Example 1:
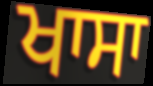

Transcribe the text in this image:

ਖਾਸਾ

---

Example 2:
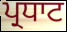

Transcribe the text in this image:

ਪ੍ਰਧਾਟ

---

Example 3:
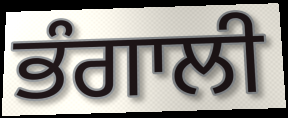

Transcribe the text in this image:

ਭੰਗਾਲੀ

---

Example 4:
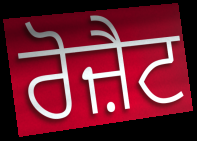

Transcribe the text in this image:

ਰੋਜ਼ੈਟ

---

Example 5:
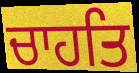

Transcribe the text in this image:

ਚਾਹਤਿ